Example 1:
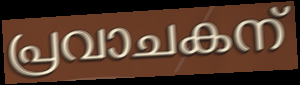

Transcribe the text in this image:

പ്രവാചകന്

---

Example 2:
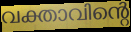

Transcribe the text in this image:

വക്താവിന്റെ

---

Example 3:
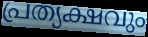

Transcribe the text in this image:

പ്രത്യക്ഷവും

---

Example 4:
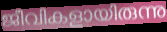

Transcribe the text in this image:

ജീവികളായിരുന്നു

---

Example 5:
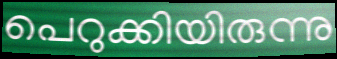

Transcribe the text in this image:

പെറുക്കിയിരുന്നു